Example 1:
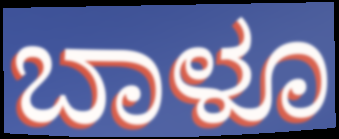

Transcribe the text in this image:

ಬಾಳೂ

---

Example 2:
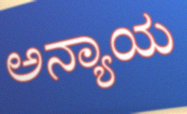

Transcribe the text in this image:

ಅನ್ಯಾಯ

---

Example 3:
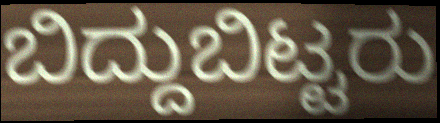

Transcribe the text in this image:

ಬಿದ್ದುಬಿಟ್ಟರು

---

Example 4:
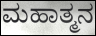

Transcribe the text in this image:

ಮಹಾತ್ಮನ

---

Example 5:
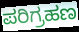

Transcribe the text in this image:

ಪರಿಗ್ರಹಣ